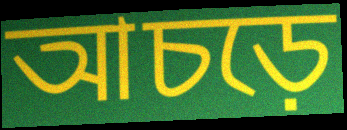
আচড়ে